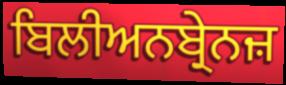
ਬਿਲੀਅਨਬ੍ਰੇਨਜ਼